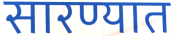
सारण्यात